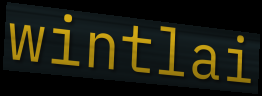
wintlai